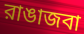
রাঙাজবা